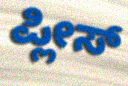
ಪ್ಲೀಸ್